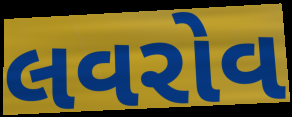
લવરોવ